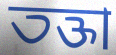
তক্তা